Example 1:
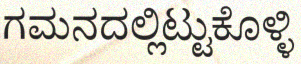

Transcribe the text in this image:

ಗಮನದಲ್ಲಿಟ್ಟುಕೊಳ್ಳಿ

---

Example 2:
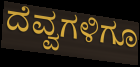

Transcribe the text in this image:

ದೆವ್ವಗಳಿಗೂ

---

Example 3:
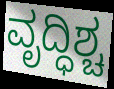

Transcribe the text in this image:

ವೃದ್ಧಿಶ್ಚ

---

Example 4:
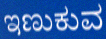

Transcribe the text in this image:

ಇಣುಕುವ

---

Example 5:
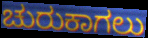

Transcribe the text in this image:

ಚುರುಕಾಗಲು